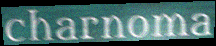
charnoma